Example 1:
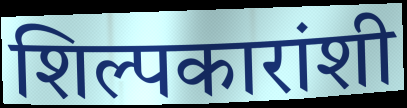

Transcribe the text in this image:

शिल्पकारांशी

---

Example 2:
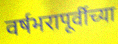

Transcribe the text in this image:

वर्षभरापूर्वीच्या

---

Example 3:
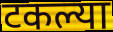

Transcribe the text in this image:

टकल्या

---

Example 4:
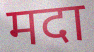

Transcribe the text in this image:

मदा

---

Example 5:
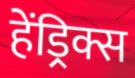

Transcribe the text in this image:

हेंड्रिक्स